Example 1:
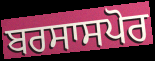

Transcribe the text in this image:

ਬਰਸਾਸਪੋਰ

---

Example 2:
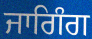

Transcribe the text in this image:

ਜਾਗਿੰਗ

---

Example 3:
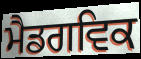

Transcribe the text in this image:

ਮੈਡਗਵਿਕ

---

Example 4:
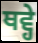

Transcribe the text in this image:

ਥਵ੍ਹੇ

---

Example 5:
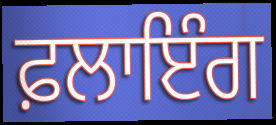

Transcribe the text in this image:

ਫ਼ਲਾਇੰਗ